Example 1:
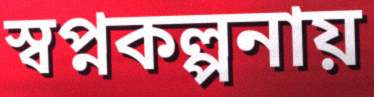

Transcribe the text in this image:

স্বপ্নকল্পনায়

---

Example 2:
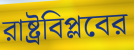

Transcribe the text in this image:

রাষ্ট্রবিপ্লবের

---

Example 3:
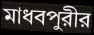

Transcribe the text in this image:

মাধবপুরীর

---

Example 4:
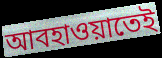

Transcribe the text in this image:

আবহাওয়াতেই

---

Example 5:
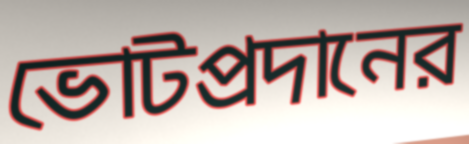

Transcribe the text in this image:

ভোটপ্রদানের